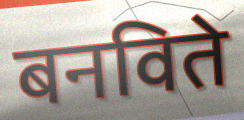
बनविते